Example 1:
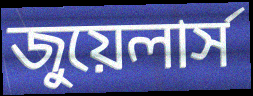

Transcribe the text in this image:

জুয়েলার্স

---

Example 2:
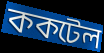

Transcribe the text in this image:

ককটেল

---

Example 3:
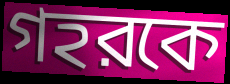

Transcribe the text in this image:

গহরকে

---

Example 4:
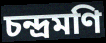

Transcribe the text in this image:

চন্দ্রমণি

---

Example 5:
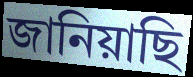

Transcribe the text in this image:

জানিয়াছি